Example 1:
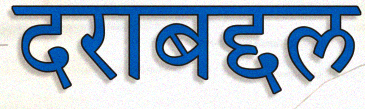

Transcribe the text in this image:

दराबद्दल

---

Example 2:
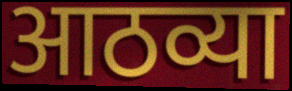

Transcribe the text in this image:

आठव्या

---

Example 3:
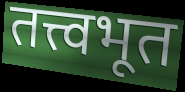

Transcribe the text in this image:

तत्त्वभूत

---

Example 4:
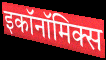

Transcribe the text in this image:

इकॉनॉमिक्‍स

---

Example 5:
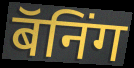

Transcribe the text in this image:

बॅनिंग